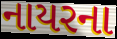
નાયરના